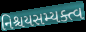
નિશ્ચયસમ્યક્ત્વ